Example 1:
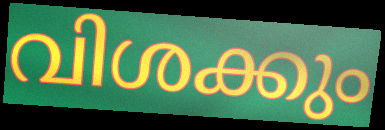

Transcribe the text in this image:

വിശക്കും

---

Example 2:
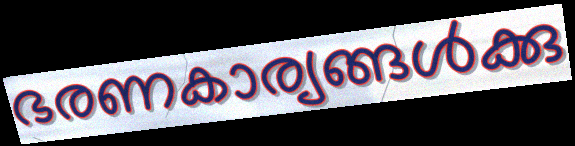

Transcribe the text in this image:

ഭരണകാര്യങ്ങൾക്കു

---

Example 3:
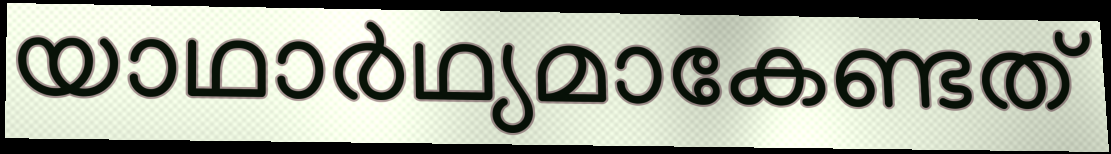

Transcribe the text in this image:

യാഥാർഥ്യമാകേണ്ടത്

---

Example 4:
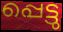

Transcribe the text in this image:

പ്പെട്ടു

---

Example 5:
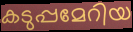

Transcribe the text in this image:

കടുപ്പമേറിയ